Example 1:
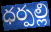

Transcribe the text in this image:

ధర్పల్లి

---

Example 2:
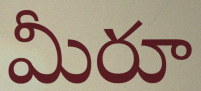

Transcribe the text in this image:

మీరూ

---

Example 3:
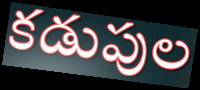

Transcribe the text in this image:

కడుపుల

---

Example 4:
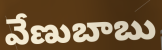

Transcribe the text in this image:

వేణుబాబు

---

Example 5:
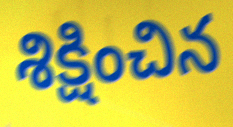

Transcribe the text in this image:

శిక్షించిన